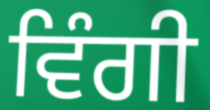
ਵਿੰਗੀ